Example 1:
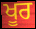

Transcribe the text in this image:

ਖੂਰ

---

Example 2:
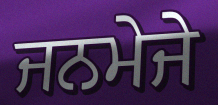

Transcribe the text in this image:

ਜਨਮੇਜੇ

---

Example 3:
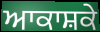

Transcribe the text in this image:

ਆਕਾਸ਼ਕੇ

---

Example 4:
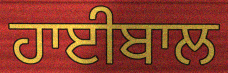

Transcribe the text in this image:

ਹਾਈਬਾਲ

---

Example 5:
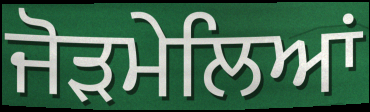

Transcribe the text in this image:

ਜੋੜਮੇਲਿਆਂ